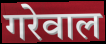
गरेवाल